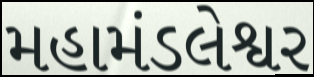
મહામંડલેશ્વર